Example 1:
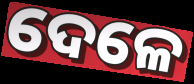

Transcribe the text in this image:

ଦେଳେ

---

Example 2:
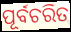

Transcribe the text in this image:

ପୂର୍ବଚରିତ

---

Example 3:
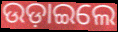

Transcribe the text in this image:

ଉଡ଼ାଇଲେ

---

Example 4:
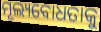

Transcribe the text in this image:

ମୂଲ୍ୟବୋଧତାକୁ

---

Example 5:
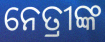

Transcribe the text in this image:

ନେତ୍ରୀଙ୍କ